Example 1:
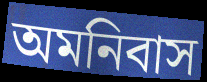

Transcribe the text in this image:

অমনিবাস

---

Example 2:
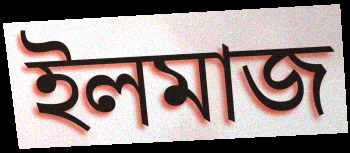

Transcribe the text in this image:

ইলমাজ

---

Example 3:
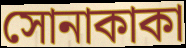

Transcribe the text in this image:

সোনাকাকা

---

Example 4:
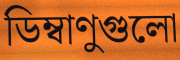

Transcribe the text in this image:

ডিম্বাণুগুলো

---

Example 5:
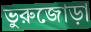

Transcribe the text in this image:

ভুরুজোড়া